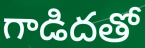
గాడిదతో